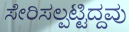
ಸೇರಿಸಲ್ಪಟ್ಟಿದ್ದವು